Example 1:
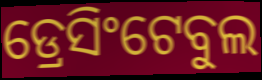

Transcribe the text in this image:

ଡ୍ରେସିଂଟେବୁଲ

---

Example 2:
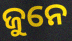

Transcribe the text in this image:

ଜୁନେ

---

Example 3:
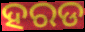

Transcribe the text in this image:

ହରଡ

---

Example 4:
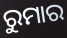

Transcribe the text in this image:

ରୁମାର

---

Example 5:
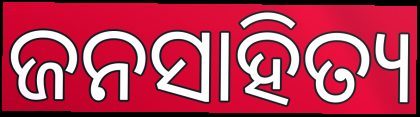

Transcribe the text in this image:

ଜନସାହିତ୍ୟ